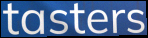
tasters